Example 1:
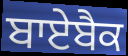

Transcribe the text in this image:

ਬਾਏਬੈਕ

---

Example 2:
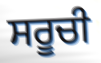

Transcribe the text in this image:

ਸਰੂਚੀ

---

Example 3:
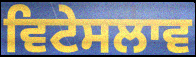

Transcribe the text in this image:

ਵਿਟੇਸਲਾਵ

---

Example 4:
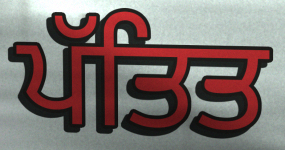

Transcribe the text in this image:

ਪੱਤਿਤ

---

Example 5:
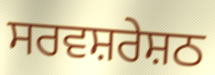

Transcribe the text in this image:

ਸਰਵਸ਼ਰੇਸ਼ਠ